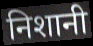
निशानी